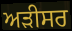
ਅੜੀਸਰ